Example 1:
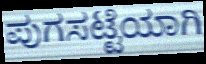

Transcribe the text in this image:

ಪುಗಸಟ್ಟೆಯಾಗಿ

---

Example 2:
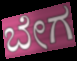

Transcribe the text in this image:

ಬೇಗ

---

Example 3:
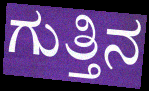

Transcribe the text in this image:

ಗುತ್ತಿನ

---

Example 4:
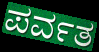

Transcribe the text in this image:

ಪರ್ವತ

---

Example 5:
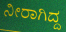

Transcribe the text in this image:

ನೀರಾಗಿದ್ದ